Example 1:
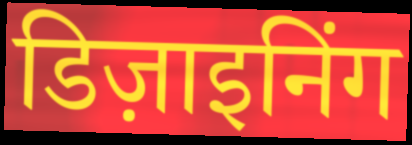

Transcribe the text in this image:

डिज़ाइनिंग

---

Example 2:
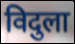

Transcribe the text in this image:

विदुला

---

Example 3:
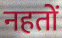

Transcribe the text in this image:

नहतों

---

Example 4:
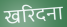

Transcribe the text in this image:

खरिदना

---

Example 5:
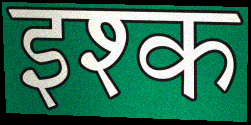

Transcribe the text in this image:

इश्क